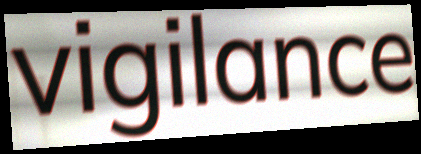
vigilance